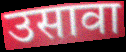
उसावा